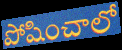
పోషించాలో